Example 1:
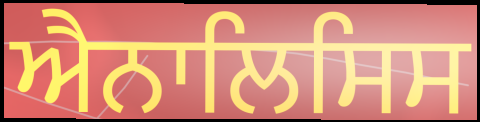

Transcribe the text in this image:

ਐਨਾਲਿਸਿਸ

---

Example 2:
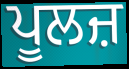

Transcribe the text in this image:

ਪੂਲਜ਼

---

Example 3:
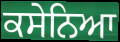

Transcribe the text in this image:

ਕਸੇਨਿਆ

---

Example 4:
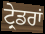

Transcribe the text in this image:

ਟ੍ਰੇਡਰਾਂ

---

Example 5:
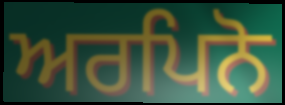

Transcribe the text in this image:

ਅਰਪਿਨੋ